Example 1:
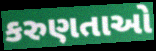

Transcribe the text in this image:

કરુણતાઓ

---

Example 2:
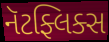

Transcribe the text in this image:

નૅટફ્લિક્સ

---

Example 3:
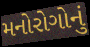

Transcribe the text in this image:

મનોરોગોનું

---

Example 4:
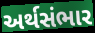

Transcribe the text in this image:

અર્થસંભાર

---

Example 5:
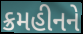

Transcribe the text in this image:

ક્રમહીનને